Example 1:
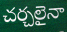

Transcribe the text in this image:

చర్చలైనా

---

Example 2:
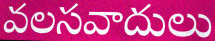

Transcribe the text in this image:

వలసవాదులు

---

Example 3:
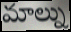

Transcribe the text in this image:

మాల్ను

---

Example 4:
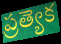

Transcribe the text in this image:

ప్రత్యెక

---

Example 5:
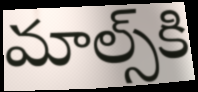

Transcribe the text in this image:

మాల్స్‌కి